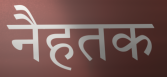
नैहतक